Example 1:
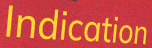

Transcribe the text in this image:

Indication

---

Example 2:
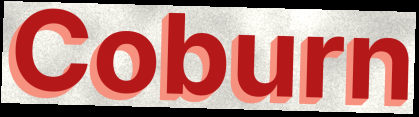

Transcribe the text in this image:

Coburn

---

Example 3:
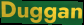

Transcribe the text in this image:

Duggan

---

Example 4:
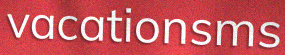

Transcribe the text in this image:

vacationsms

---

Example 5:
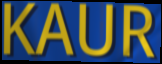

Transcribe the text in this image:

KAUR